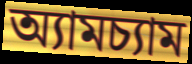
অ্যামচ্যাম